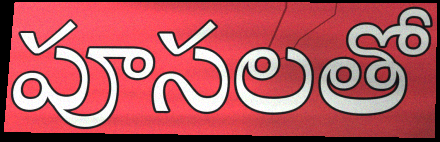
పూసలతో